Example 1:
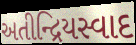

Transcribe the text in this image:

અતીન્દ્રિયસ્વાદ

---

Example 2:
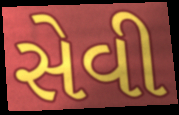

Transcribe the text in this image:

સેવી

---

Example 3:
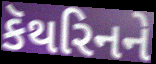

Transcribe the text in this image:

કૅથરિનને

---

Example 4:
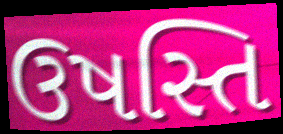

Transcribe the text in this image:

ઉષસ્તિ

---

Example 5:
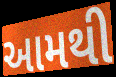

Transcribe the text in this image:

આમથી